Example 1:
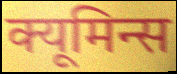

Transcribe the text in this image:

क्यूमिन्स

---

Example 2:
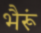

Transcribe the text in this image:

भैरूं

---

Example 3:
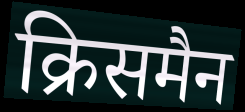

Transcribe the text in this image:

क्रिसमैन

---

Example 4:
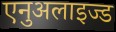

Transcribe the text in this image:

एनुअलाइज्ड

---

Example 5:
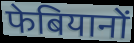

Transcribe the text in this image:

फेबियानों